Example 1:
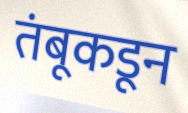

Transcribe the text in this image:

तंबूकडून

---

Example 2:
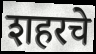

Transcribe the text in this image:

शहरचे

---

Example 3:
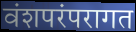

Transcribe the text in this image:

वंशपरंपरागत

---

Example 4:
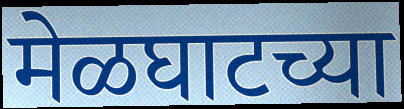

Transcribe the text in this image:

मेळघाटच्या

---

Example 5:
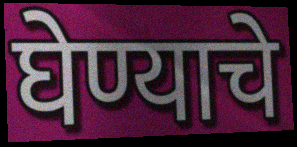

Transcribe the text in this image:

घेण्याचे